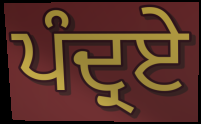
ਪੰਦ੍ਰਏ